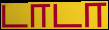
டாடா